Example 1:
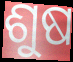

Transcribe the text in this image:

ଶୁଷ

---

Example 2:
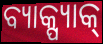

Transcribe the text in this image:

ବ୍ୟାକ୍ପ୍ୟାକ୍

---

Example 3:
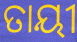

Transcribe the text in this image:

ତାୟୀ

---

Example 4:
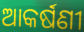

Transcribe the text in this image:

ଆକର୍ଷଣୀ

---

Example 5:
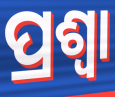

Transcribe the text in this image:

ପ୍ରଶ୍ଵା